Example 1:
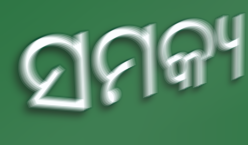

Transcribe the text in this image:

ସମକ୍ୟ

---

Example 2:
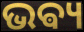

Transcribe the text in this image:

ଭଵ୍ୟ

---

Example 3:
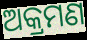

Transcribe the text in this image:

ଅକ୍ରମଣ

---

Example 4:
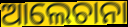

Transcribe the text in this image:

ଆଲେଚାନା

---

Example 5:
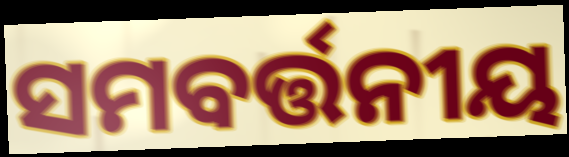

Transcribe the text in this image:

ସମବର୍ତ୍ତନୀୟ